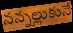
నన్నల్లుకునే